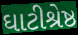
ઘાટીશ્રેષ્ઠ